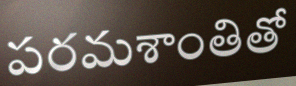
పరమశాంతితో